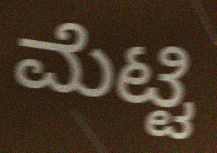
ಮೆಟ್ಟಿ